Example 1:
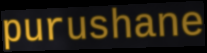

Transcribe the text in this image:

purushane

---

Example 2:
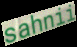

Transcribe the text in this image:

sahnii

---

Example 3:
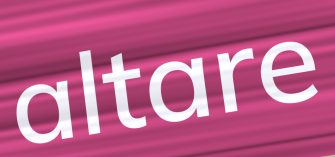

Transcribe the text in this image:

altare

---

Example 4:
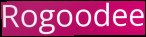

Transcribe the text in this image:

Rogoodee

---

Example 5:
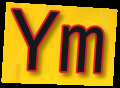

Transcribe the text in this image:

Ym